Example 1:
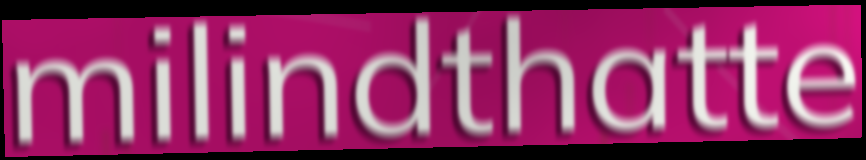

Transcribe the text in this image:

milindthatte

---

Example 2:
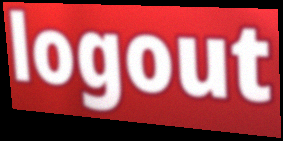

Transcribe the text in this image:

logout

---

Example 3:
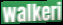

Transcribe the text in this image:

walkeri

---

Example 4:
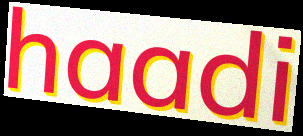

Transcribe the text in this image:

haadi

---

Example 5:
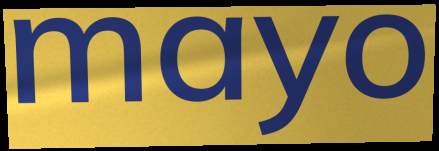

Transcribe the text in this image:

mayo